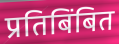
प्रतिबिंबित